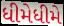
ધીમેધીમે